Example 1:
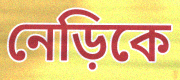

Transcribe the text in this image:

নেড়িকে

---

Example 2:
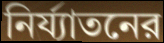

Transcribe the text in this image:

নির্য্যাতনের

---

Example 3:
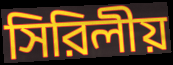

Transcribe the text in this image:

সিরিলীয়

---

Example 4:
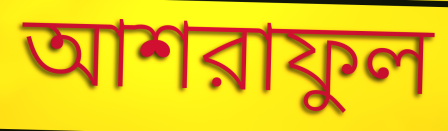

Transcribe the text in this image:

আশরাফুল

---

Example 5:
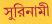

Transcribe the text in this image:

সুরিনামী